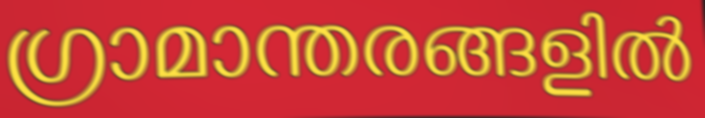
ഗ്രാമാന്തരങ്ങളിൽ